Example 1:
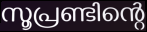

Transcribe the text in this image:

സൂപ്രണ്ടിന്റെ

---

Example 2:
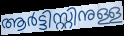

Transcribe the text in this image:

ആർട്ടിസ്റ്റിനുള്ള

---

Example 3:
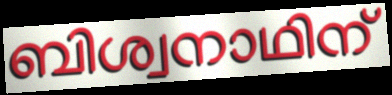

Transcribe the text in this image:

ബിശ്വനാഥിന്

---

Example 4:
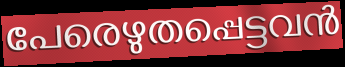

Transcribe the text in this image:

പേരെഴുതപ്പെട്ടവൻ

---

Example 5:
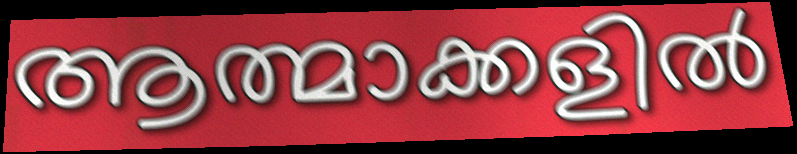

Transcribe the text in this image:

ആത്മാക്കളിൽ